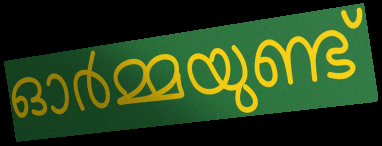
ഓർമ്മയുണ്ട്